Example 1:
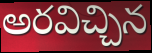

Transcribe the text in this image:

అరవిచ్చిన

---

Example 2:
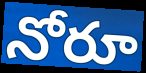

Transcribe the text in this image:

నోరూ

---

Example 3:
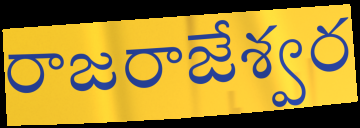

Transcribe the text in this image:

రాజరాజేశ్వర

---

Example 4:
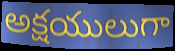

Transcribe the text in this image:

అక్షయులుగా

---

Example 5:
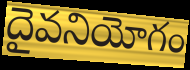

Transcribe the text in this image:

దైవనియోగం